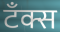
टँक्स